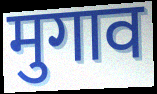
मुगाव